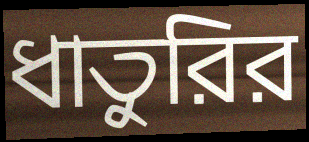
ধাতুরির